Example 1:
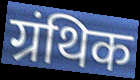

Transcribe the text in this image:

ग्रंथिक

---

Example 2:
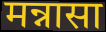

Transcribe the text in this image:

मन्नासा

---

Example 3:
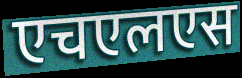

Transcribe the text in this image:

एचएलएस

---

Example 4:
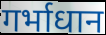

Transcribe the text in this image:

गर्भाधान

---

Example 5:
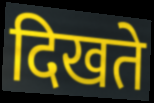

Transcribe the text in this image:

दिखते